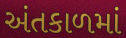
અંતકાળમાં